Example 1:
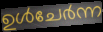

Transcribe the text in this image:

ഉൾചേർന്ന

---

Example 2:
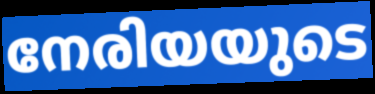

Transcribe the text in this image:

നേരിയയുടെ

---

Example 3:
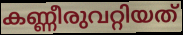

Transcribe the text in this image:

കണ്ണീരുവറ്റിയത്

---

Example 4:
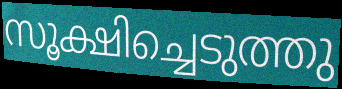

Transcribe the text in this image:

സൂക്ഷിച്ചെടുത്തു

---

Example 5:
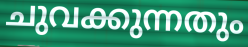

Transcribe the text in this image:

ചുവക്കുന്നതും